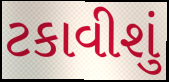
ટકાવીશું